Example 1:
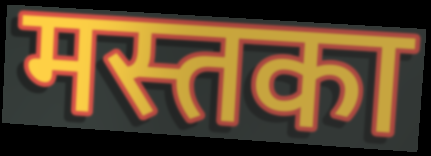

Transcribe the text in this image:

मस्तका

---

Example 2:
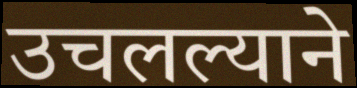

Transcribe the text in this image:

उचलल्याने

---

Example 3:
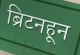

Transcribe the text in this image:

ब्रिटनहून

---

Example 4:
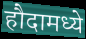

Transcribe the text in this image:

हौदामध्ये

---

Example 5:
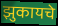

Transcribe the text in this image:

झुकायचे